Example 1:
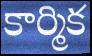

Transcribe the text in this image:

కార్మిక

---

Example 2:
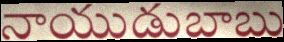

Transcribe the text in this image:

నాయుడుబాబు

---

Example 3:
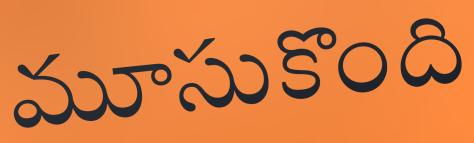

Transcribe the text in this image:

మూసుకొంది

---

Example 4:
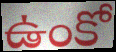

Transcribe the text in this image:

ఉంకో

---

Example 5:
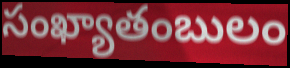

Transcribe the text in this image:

సంఖ్యాతంబులం